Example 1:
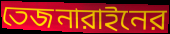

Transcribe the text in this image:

তেজনারাইনের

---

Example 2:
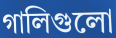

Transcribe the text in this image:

গালিগুলো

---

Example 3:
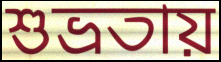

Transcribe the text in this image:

শুভ্রতায়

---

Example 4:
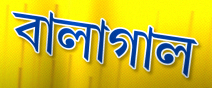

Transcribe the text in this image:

বালাগাল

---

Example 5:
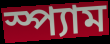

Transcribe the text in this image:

স্প্যাম